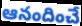
ఆనందించే